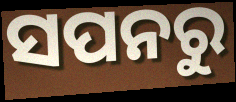
ସପନରୁ